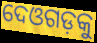
ଦେଓଗଡ଼କୁ